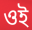
ওই